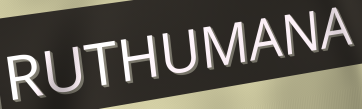
RUTHUMANA